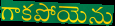
గాకపోయెను